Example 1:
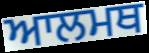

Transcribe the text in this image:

ਆਲਮਥ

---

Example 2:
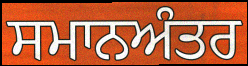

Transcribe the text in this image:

ਸਮਾਨਅੰਤਰ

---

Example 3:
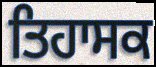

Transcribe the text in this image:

ਤਿਹਾਸਕ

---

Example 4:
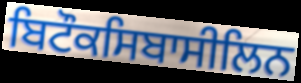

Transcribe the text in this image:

ਬਿਟੌਕਸਿਬਾਸੀਲਿਨ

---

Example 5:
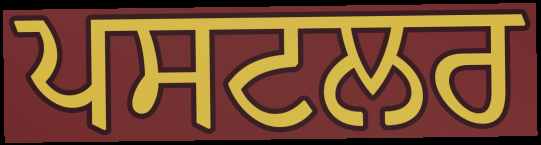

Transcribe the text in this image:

ਪਸਟਲਰ